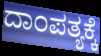
ದಾಂಪತ್ಯಕ್ಕೆ